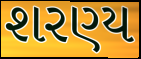
શરણ્ય